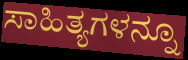
ಸಾಹಿತ್ಯಗಳನ್ನೂ